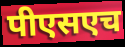
पीएसएच